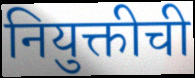
नियुक्तीची